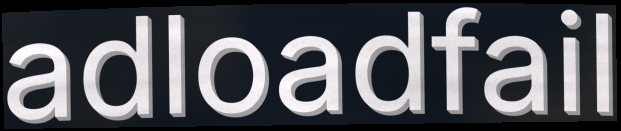
adloadfail